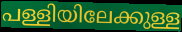
പള്ളിയിലേക്കുള്ള